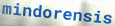
mindorensis